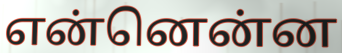
என்னென்ன